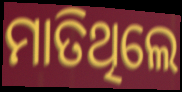
ମାତିଥିଲେ